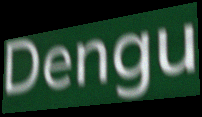
Dengu